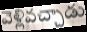
వెళ్లివచ్చాడు